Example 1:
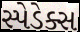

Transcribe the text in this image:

સ્પેડેક્સ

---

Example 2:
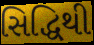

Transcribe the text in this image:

સિદ્ધિથી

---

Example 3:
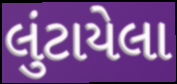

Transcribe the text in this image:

લુંટાયેલા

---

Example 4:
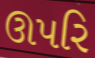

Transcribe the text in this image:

ઊપરિ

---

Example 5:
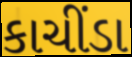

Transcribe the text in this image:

કાચીંડા